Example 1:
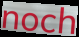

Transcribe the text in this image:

noch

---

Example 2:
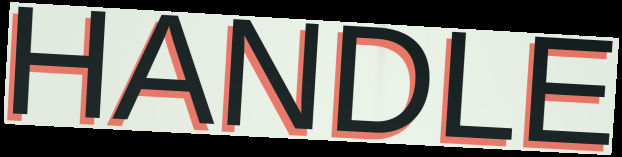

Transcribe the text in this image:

HANDLE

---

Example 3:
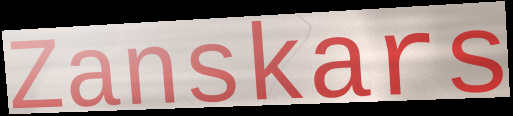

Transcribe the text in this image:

Zanskars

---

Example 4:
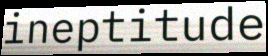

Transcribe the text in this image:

ineptitude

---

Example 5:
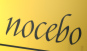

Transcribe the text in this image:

nocebo